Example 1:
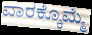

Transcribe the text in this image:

ವಾರಕ್ಕೊಮ್ಮೆ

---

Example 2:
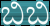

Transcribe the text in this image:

ಬಿಬಿ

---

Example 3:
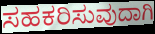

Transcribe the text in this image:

ಸಹಕರಿಸುವುದಾಗಿ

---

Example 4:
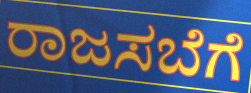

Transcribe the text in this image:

ರಾಜಸಬೆಗೆ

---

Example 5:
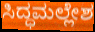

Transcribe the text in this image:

ಸಿದ್ಧಮಲ್ಲೇಶ